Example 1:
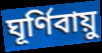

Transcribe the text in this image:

ঘূর্ণিবায়ু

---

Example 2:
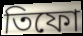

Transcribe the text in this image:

তিফো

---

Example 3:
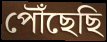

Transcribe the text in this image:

পৌঁছেছি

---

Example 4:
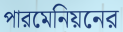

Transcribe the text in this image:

পারমেনিয়নের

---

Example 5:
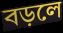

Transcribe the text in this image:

বড়লে